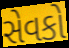
સેવકો